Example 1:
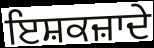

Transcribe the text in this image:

ਇਸ਼ਕਜ਼ਾਦੇ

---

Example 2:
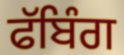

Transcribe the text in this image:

ਫੱਬਿੰਗ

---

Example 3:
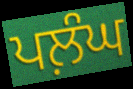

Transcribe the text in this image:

ਪਲ਼ੰਘ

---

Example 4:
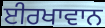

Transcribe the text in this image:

ਈਰਖਾਵਾਨ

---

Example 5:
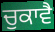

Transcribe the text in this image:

ਚੁਕਾਵੈ